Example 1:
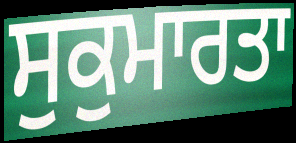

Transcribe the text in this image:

ਸੁਕੁਮਾਰਤਾ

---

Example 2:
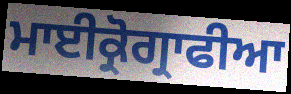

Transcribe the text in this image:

ਮਾਈਕ੍ਰੋਗ੍ਰਾਫੀਆ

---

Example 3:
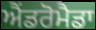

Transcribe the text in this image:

ਐਂਡਰੋਮੈਡਾ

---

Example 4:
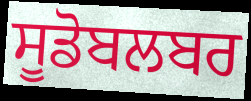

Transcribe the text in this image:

ਸੂਡੋਬਲਬਰ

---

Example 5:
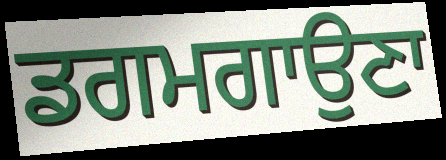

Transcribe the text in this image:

ਡਗਮਗਾਉਣਾ